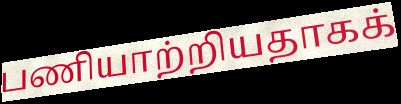
பணியாற்றியதாகக்